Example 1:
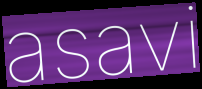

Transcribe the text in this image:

asavi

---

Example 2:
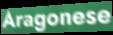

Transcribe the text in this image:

Aragonese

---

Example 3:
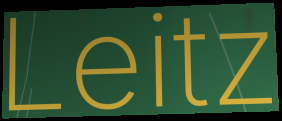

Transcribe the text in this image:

Leitz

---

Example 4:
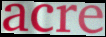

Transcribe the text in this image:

acre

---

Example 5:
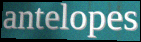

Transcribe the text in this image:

antelopes